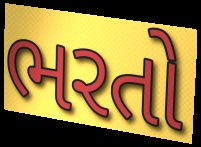
ભરતો